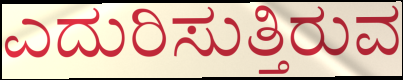
ಎದುರಿಸುತ್ತಿರುವ